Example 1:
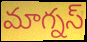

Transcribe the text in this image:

మాగ్నస్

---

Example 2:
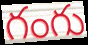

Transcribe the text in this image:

గంగు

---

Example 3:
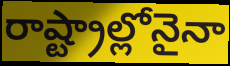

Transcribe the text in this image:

రాష్ట్రాల్లోనైనా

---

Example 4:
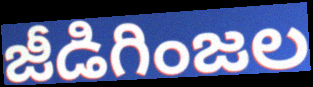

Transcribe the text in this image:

జీడిగింజల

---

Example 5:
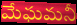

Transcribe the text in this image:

మేఘమనీ